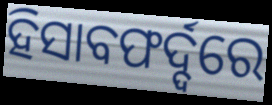
ହିସାବଫର୍ଦ୍ଦରେ